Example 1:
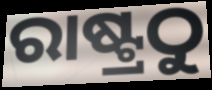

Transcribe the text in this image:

ରାଷ୍ଟ୍ରଠୁ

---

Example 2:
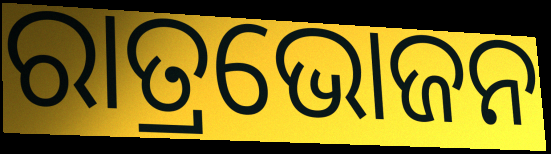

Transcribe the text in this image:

ରାତ୍ରଭୋଜନ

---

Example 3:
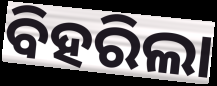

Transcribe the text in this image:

ବିହରିଲା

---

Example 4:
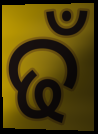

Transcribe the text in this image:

ଢଁ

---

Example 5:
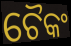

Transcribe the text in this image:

ଚୈକଂ